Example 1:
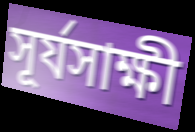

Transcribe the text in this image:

সূর্যসাক্ষী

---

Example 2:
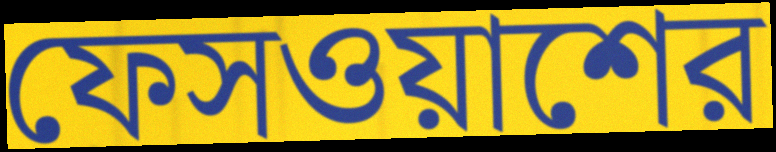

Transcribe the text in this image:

ফেসওয়াশের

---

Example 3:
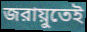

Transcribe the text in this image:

জরায়ুতেই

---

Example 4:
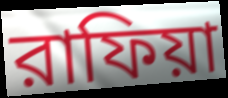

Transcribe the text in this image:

রাফিয়া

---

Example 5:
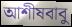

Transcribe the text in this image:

আশীষবাবু